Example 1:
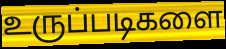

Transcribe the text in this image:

உருப்படிகளை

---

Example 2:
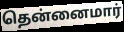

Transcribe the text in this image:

தென்னைமார்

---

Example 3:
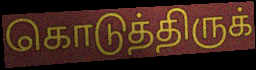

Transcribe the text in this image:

கொடுத்திருக்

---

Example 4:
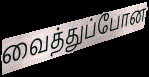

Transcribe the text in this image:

வைத்துப்போன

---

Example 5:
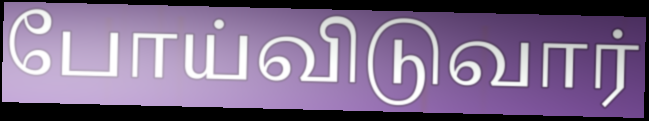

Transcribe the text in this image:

போய்விடுவார்